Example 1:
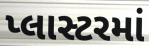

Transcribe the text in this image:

પ્લાસ્ટરમાં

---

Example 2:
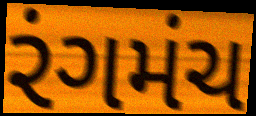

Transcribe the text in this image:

રંગમંચ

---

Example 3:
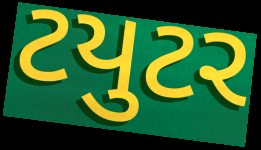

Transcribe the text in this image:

ટયુટર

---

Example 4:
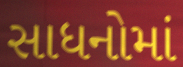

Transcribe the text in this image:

સાધનોમાં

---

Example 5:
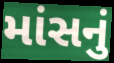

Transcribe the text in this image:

માંસનું